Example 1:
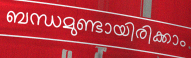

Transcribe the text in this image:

ബന്ധമുണ്ടായിരിക്കാം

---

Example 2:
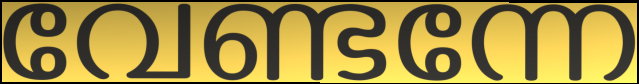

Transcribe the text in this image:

വേണ്ടന്നേ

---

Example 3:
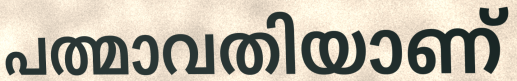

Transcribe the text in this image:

പത്മാവതിയാണ്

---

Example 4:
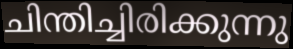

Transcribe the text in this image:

ചിന്തിച്ചിരിക്കുന്നു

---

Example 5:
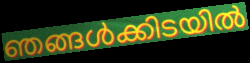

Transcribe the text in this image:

ഞങ്ങൾക്കിടയിൽ